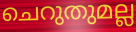
ചെറുതുമല്ല